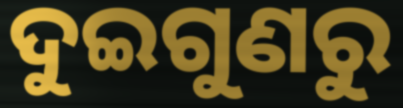
ଦୁଇଗୁଣରୁ